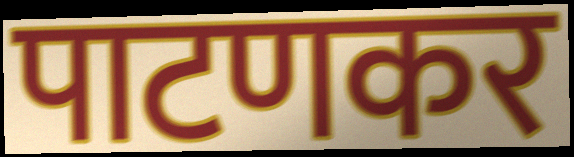
पाटणकर